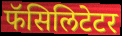
फॅसिलिटेटर